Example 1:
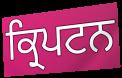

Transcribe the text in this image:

ਕ੍ਰਿਪਟਨ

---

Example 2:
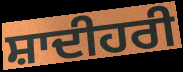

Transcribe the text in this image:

ਸ਼ਾਦੀਹਰੀ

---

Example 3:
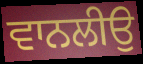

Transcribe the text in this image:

ਵਾਨਲੀਉ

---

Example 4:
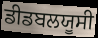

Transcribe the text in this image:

ਡੀਡਬਲਯੂਸੀ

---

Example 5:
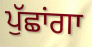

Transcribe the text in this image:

ਪੁੱਛਾਂਗਾ